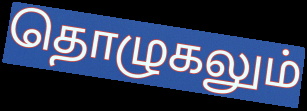
தொழுகலும்